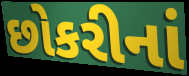
છોકરીનાં